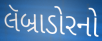
લૅબ્રાડોરનો